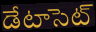
డేటాసెట్